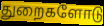
துறைகளோடு